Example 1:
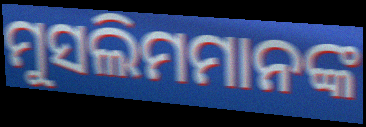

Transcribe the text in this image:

ମୁସଲିମମାନଙ୍କ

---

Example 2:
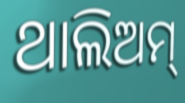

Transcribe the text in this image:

ଥାଲିଅମ୍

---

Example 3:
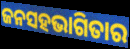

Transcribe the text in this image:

ଜନସହଭାଗିତାର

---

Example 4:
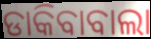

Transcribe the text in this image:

ଡାକିବାବାଲା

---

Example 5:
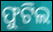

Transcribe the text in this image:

ଫୁଟିଲ